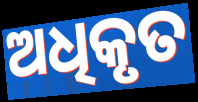
ଅଧିକୃତ